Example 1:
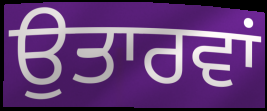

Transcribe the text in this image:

ਉਤਾਰਵਾਂ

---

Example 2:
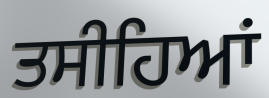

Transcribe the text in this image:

ਤਸੀਹਿਆਂ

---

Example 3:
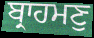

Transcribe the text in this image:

ਬ੍ਰਾਹਮਣੁ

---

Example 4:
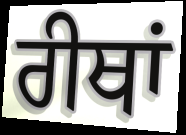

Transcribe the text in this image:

ਰੀਥਾਂ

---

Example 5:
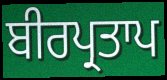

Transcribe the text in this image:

ਬੀਰਪ੍ਰਤਾਪ